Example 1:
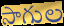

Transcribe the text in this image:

సాగుల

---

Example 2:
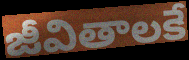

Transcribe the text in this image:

జీవితాలకే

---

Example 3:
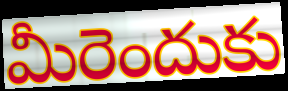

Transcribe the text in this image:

మీరెందుకు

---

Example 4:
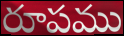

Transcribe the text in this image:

రూపము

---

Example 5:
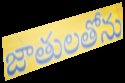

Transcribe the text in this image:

జాతులతోను